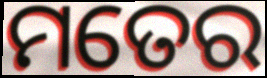
ମତେର